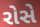
રોસે